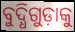
ବୁଦ୍ଧିଗୁଡ଼ାକୁ